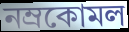
নম্রকোমল